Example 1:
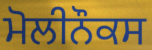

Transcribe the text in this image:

ਮੋਲੀਨੌਕਸ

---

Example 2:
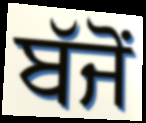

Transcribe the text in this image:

ਬੱਜੋਂ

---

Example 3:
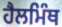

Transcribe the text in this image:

ਹੈਲਮਿੰਥ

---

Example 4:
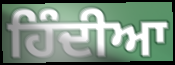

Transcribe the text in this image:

ਹਿੰਦੀਆ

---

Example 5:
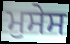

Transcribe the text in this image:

ਮੁਸੇਸ